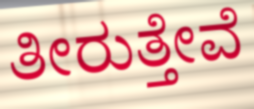
ತೀರುತ್ತೇವೆ